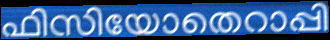
ഫിസിയോതെറാപ്പി